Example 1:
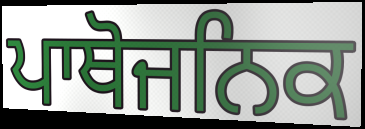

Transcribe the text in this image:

ਪਾਥੋਜਨਿਕ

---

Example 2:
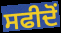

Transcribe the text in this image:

ਸਫੀਦੋਂ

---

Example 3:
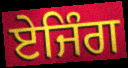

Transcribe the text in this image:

ਏਜਿੰਗ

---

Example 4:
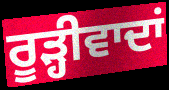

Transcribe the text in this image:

ਰੂੜ੍ਹੀਵਾਦਾਂ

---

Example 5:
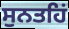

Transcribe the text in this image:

ਸੁਨਤਹਿਂ